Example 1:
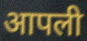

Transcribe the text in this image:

आपली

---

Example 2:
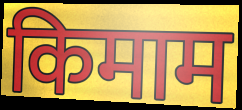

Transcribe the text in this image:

किमाम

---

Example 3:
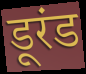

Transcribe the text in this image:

डूरंड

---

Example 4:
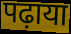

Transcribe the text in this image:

पढ़ाया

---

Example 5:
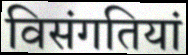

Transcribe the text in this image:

विसंगतियां